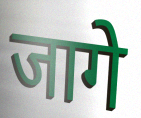
जागे